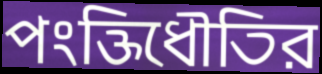
পংক্তিধৌতির